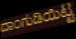
ದಾಂಗುಡಿಯಿಟ್ಟ